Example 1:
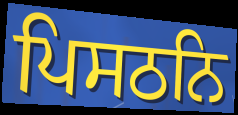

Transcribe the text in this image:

ਪਿਸਠਨਿ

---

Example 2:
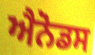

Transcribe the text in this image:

ਐਨੋਡਸ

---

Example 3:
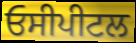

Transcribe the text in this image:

ਓਸੀਪੀਟਲ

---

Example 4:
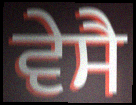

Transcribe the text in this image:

ਵੇਸੈ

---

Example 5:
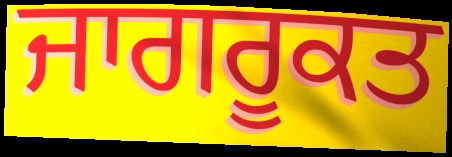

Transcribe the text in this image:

ਜਾਗਰੂਕਤ